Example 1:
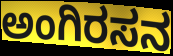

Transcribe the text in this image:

ಅಂಗಿರಸನ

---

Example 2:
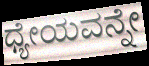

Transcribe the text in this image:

ಧ್ಯೇಯವನ್ನೇ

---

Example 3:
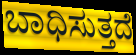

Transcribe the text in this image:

ಬಾಧಿಸುತ್ತದೆ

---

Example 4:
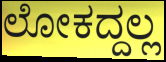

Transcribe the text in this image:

ಲೋಕದ್ದಲ್ಲ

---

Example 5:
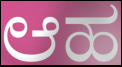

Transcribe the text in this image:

ಆಹ